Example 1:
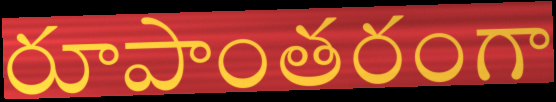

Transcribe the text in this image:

రూపాంతరంగా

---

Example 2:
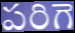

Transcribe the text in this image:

పరిగె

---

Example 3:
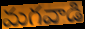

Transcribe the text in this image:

మగవాడి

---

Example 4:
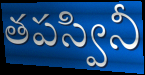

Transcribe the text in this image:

తపస్వినీ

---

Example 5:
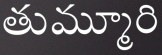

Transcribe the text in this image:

తుమ్మూరి